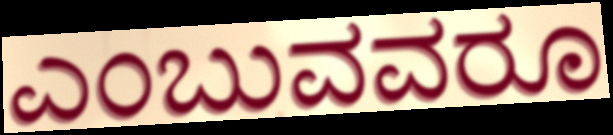
ಎಂಬುವವರೂ